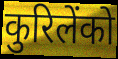
कुरिलेंको